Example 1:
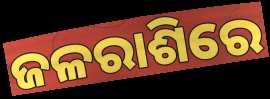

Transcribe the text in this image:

ଜଳରାଶିରେ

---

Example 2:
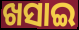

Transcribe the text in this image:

ଖସାଇ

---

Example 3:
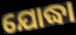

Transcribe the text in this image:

ଯୋଦ୍ଧା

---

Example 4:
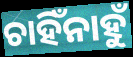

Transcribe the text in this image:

ଚାହିଁନାହୁଁ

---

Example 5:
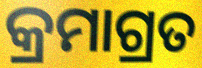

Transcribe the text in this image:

କ୍ରମାଗ୍ରତ